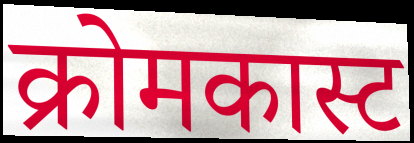
क्रोमकास्ट